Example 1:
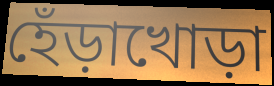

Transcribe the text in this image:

হেঁড়াখোড়া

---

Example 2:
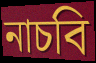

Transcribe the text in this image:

নাচবি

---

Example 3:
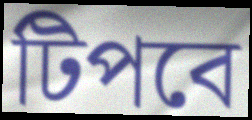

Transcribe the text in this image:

টিপবে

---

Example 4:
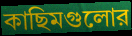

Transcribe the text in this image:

কাছিমগুলোর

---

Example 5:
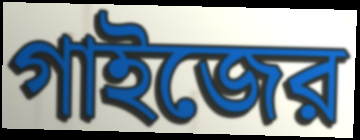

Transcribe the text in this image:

গাইজের